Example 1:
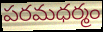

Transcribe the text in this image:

పరమధర్మం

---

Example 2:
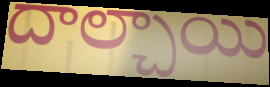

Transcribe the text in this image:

దాల్చాయి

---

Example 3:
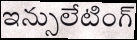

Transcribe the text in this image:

ఇన్సులేటింగ్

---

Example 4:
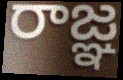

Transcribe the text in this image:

రాజ్ఞ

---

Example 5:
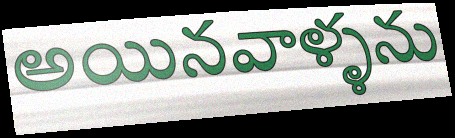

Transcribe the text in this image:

అయినవాళ్ళను